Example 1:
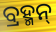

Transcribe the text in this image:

ବ୍ରହ୍ମନ୍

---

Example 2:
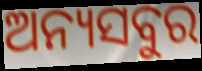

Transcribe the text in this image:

ଅନ୍ୟସବୁର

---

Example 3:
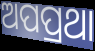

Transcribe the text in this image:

ଅପପ୍ରଥା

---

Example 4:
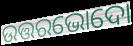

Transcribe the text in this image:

ଉତ୍ତରଭୋଦୋ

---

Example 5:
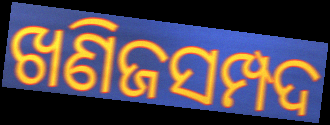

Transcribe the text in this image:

ଖଣିଜସମ୍ପଦ